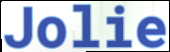
Jolie